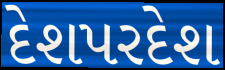
દેશપરદેશ